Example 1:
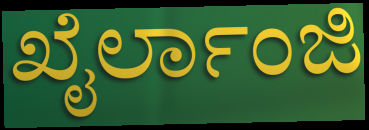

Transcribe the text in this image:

ಖೈರ್ಲಾಂಜಿ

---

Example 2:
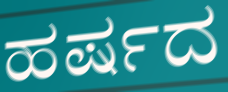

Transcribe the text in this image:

ಹರ್ಷದ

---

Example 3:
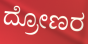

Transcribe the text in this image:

ದ್ರೋಣರ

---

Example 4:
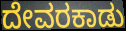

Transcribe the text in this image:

ದೇವರಕಾಡು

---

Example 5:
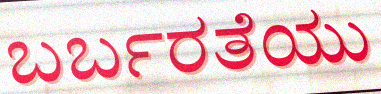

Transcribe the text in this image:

ಬರ್ಬರತೆಯು